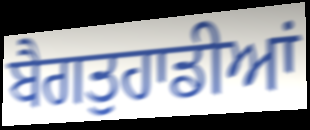
ਬੈਗਤੁਹਾਡੀਆਂ